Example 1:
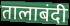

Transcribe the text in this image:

तालाबंदी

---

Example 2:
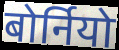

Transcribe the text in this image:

बोर्नियो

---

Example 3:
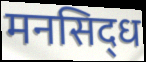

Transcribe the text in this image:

मनसिद्ध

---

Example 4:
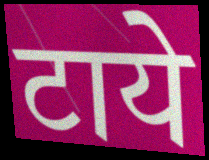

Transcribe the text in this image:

टाये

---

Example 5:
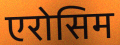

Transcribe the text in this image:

एरोसिम